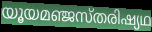
യൂയമഞ്ജസ്തരിഷ്യഥ